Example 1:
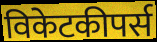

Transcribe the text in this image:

विकेटकीपर्स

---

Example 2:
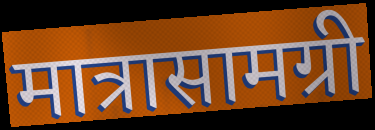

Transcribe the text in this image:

मात्रासामग्री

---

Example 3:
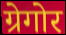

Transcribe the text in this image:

ग्रेगोर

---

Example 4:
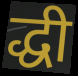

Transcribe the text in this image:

द्धी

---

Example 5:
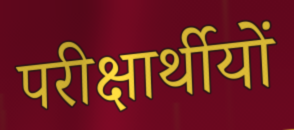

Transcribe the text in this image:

परीक्षार्थीयों